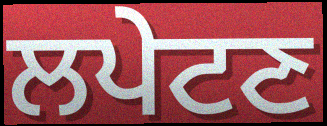
ਲਪੇਟਣ